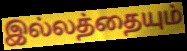
இல்லத்தையும்